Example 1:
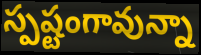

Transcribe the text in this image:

స్పష్టంగావున్నా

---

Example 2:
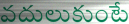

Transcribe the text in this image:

వదులుకుంటే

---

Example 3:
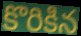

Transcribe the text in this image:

కొరికిన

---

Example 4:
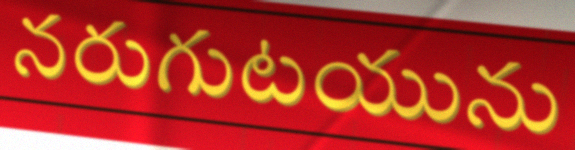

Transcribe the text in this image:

నరుగుటయును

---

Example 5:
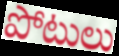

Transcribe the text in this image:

పోటులు